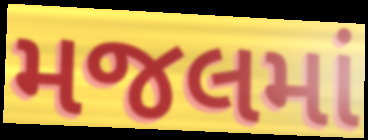
મજલમાં